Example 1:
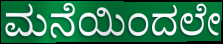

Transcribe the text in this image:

ಮನೆಯಿಂದಲೇ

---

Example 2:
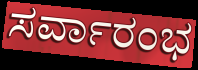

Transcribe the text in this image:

ಸರ್ವಾರಂಭ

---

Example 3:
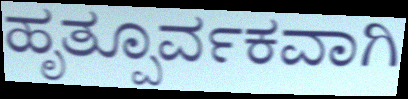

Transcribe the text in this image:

ಹೃತ್ಪೂರ್ವಕವಾಗಿ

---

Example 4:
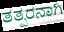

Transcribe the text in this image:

ತತ್ಪರನಾಗಿ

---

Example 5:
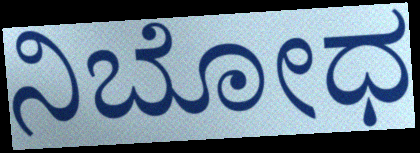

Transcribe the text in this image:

ನಿಬೋಧ